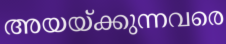
അയയ്ക്കുന്നവരെ